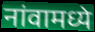
नांवामध्ये